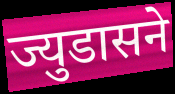
ज्युडासने